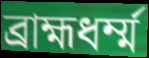
ব্রাহ্মধর্ম্ম